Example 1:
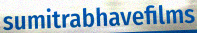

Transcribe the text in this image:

sumitrabhavefilms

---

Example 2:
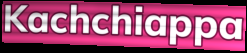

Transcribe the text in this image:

Kachchiappa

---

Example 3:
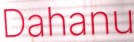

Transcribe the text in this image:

Dahanu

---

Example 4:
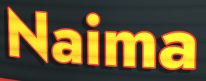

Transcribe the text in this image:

Naima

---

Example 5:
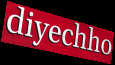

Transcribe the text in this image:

diyechho